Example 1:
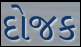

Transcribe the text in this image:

દોજક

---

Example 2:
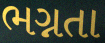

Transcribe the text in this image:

ભગ્નતા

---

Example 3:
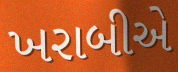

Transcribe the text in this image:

ખરાબીએ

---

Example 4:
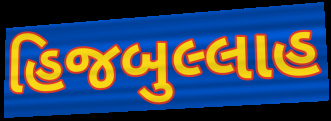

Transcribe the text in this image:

હિજબુલ્લાહ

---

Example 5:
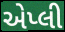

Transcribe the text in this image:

એપ્લી